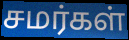
சமர்கள்